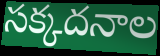
సక్కదనాల